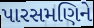
પારસમણિને